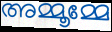
അമ്മൂമ്മേ